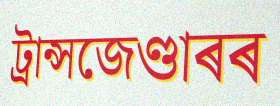
ট্ৰান্সজেণ্ডাৰৰ